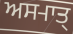
ਅਸ੍ਮਾਤ੍